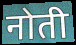
नोती